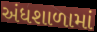
અંધશાળામાં